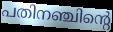
പതിനഞ്ചിന്റെ